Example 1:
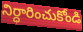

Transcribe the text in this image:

నిర్ధారించుకోండి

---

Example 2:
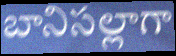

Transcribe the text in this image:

బానిసల్లాగా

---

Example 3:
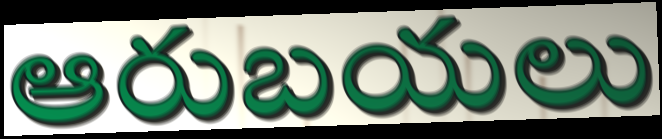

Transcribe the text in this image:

ఆరుబయలు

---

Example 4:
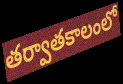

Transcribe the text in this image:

తర్వాతకాలంలో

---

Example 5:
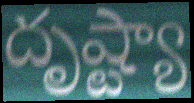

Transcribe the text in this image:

దృష్ట్యా